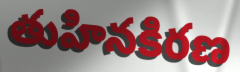
తుహినకిరణ